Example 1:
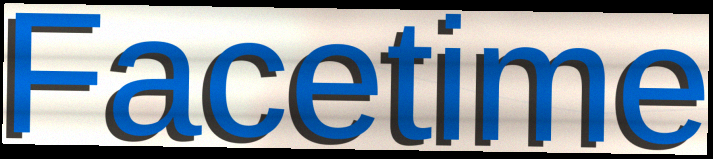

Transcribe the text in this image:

Facetime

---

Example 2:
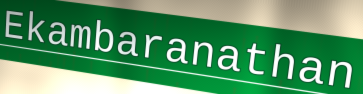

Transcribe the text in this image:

Ekambaranathan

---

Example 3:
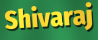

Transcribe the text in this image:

Shivaraj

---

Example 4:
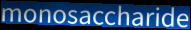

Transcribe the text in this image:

monosaccharide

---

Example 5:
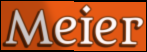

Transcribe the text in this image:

Meier